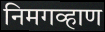
निमगव्हाण